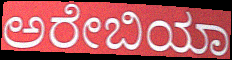
ಅರೇಬಿಯಾ